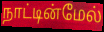
நாட்டின்மேல்